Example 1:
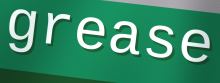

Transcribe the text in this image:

grease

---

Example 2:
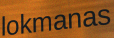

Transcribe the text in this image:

lokmanas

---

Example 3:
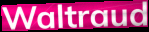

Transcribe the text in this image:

Waltraud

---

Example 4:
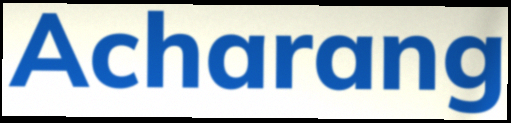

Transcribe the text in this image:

Acharang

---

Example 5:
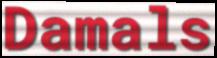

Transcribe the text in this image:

Damals